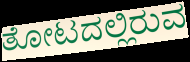
ತೋಟದಲ್ಲಿರುವ